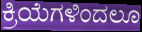
ಕ್ರಿಯೆಗಳಿಂದಲೂ